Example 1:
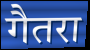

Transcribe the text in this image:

गैतरा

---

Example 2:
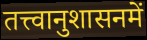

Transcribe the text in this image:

तत्त्वानुशासनमें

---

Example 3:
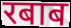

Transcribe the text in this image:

रबाब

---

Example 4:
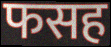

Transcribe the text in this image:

फसह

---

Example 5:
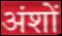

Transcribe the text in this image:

अंशों